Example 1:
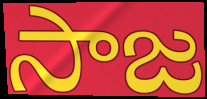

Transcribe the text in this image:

సాజ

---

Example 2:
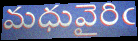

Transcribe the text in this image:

మధువైరిఁ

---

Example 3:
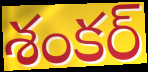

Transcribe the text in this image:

శంకర్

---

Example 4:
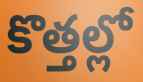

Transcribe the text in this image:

కొత్తల్లో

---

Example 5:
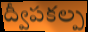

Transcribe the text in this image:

ద్వీపకల్ప